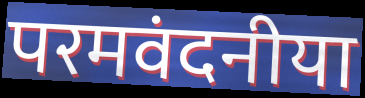
परमवंदनीया